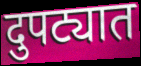
दुपट्यात